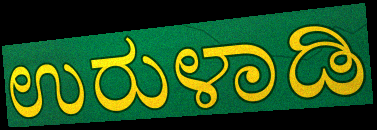
ಉರುಳಾಡಿ